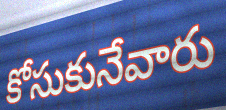
కోసుకునేవారు